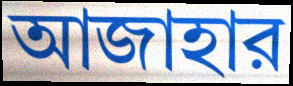
আজাহার